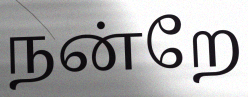
நன்றே